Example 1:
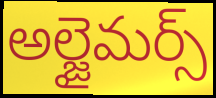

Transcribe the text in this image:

అల్జైమర్స్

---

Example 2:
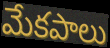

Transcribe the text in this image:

మేకపాలు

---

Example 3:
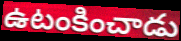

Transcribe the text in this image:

ఉటంకించాడు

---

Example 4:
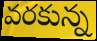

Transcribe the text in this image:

వరకున్న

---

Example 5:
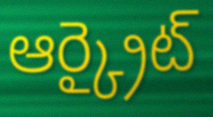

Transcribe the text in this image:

ఆర్క్రైట్